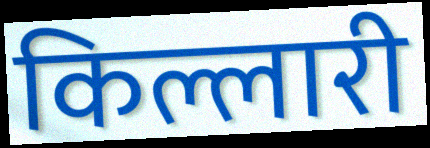
किल्लारी